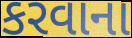
કરવાના